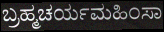
ಬ್ರಹ್ಮಚರ್ಯಮಹಿಂಸಾ